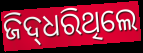
ଜିଦ୍‌ଧରିଥିଲେ